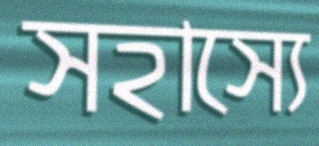
সহাস্যে